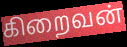
கிறைவன்